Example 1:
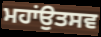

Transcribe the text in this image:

ਮਹਾਂਉਤਸਵ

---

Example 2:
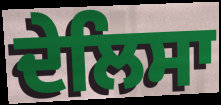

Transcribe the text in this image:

ਦੇਲਿਸਾ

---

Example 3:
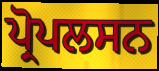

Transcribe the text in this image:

ਪ੍ਰੋਪਲਸਨ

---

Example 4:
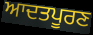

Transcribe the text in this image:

ਆਦਤਪੂਰਣ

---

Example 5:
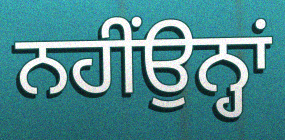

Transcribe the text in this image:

ਨਹੀਂਉਨ੍ਹਾਂ